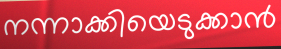
നന്നാക്കിയെടുക്കാൻ